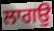
ਲਾਗਉ